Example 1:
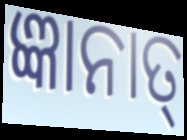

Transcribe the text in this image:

ଜ୍ଞାନାତ୍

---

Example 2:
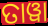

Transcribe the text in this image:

ତାୱା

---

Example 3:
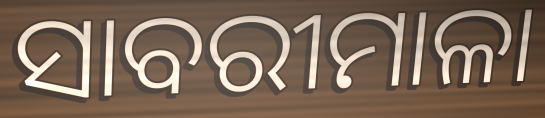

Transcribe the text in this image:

ସାବରୀମାଳା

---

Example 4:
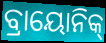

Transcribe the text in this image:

ବ୍ରାୟୋନିକ୍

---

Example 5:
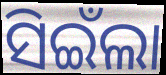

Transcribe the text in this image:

ସିଇଁଲା